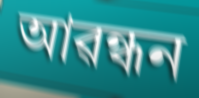
আৱন্ধন